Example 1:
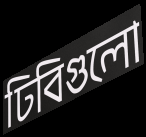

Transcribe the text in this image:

ঢিবিগুলো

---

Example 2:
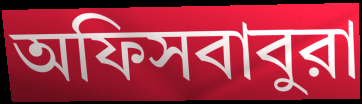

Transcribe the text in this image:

অফিসবাবুরা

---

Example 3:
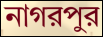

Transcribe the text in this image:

নাগরপুর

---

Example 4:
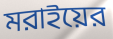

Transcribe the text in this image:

মরাইয়ের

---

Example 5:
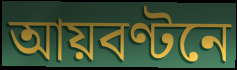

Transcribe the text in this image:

আয়বণ্টনে